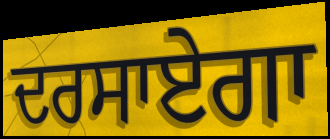
ਦਰਸਾਏਗਾ